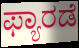
ಫ್ಯಾರಡೆ